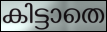
കിട്ടാതെ